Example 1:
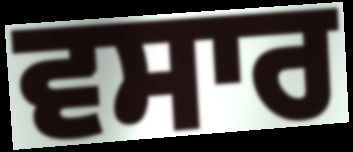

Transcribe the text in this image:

ਵਸਾਰ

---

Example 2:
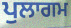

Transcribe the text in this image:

ਪੁਲਾਗਮ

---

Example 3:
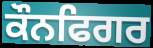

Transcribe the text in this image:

ਕੌਨਫਿਗਰ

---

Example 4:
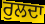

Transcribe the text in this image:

ਰੁਲਦਾ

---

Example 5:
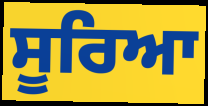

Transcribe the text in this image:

ਸੂਰਿਆ